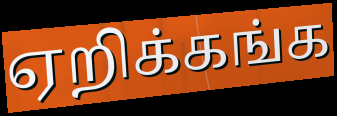
ஏறிக்கங்க